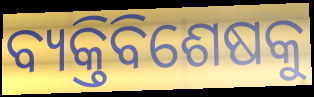
ବ୍ୟକ୍ତିବିଶେଷକୁ